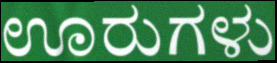
ಊರುಗಳು